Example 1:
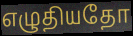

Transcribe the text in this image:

எழுதியதோ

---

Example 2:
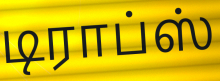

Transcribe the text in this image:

டிராப்ஸ்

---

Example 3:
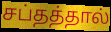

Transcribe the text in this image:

சப்தத்தால்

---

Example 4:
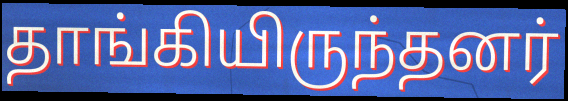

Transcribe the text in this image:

தாங்கியிருந்தனர்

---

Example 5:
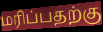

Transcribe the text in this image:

மரிப்பதற்கு